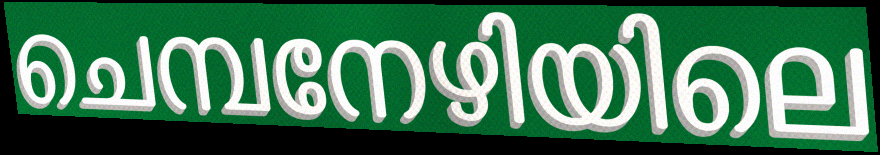
ചെമ്പനേഴിയിലെ